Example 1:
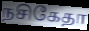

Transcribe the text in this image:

நசிகேதா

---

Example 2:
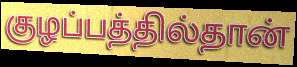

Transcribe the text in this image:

குழப்பத்தில்தான்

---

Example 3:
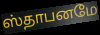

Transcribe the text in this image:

ஸ்தாபனமே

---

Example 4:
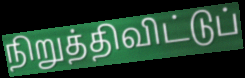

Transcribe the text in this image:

நிறுத்திவிட்டுப்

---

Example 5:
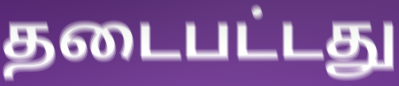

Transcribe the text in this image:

தடைபட்டது